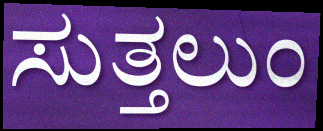
ಸುತ್ತಲುಂ